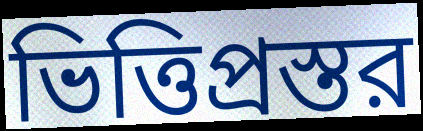
ভিত্তিপ্রস্তর